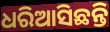
ଧରିଆସିଛନ୍ତି